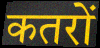
कतरों